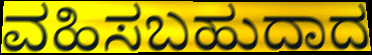
ವಹಿಸಬಹುದಾದ